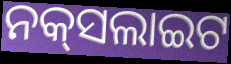
ନକ୍‌ସଲାଇଟ